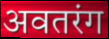
अवतरंग